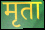
मृता